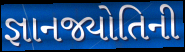
જ્ઞાનજ્યોતિની